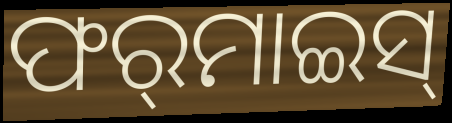
ଫର୍‌ମାଇସ୍